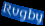
Rugby